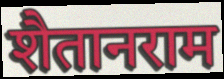
शैतानराम